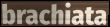
brachiata